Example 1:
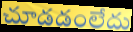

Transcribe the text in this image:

చూడడంలేదు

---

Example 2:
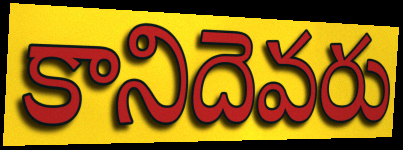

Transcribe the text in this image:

కానిదెవరు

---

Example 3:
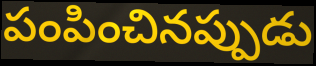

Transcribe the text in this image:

పంపించినప్పుడు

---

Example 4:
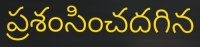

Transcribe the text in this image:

ప్రశంసించదగిన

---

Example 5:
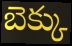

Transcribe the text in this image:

బెక్కు